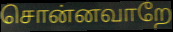
சொன்னவாறே